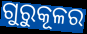
ଗୁରୁକୂଳର